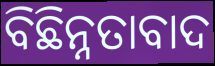
ବିଛିନ୍ନତାବାଦ